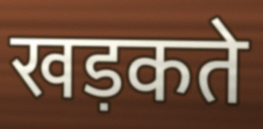
खड़कते